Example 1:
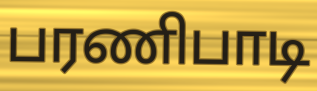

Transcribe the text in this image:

பரணிபாடி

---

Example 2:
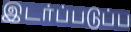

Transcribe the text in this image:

இடர்ப்படுப்ப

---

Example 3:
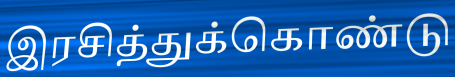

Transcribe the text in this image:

இரசித்துக்கொண்டு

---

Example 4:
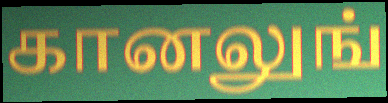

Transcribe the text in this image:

கானலுங்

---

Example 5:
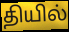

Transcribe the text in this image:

தியில்